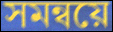
সমন্বয়ে